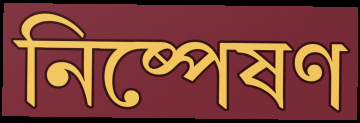
নিষ্পেষণ